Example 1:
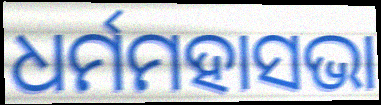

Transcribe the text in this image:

ଧର୍ମମହାସଭା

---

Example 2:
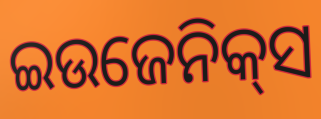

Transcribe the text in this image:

ଇଉଜେନିକ୍‌ସ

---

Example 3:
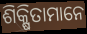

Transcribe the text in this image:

ଶିକ୍ଷିତାମାନେ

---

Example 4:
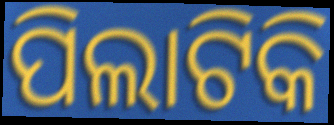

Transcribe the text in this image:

ପିଲାଟିକି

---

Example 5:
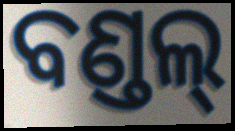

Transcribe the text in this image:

ବଣ୍ଡଲ୍